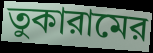
তুকারামের